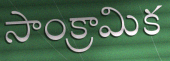
సాంక్రామిక